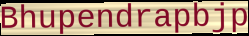
Bhupendrapbjp